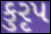
કુરૃપ